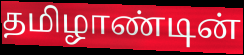
தமிழாண்டின்